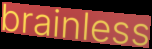
brainless